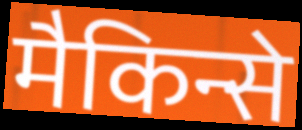
मैकिन्से